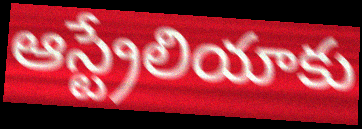
ఆస్ట్రేలియాకు